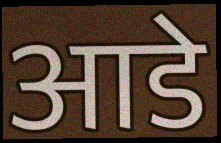
आडे